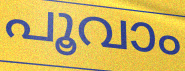
പൂവാം